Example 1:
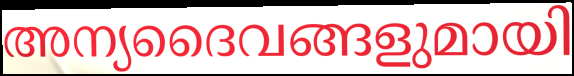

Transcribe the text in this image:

അന്യദൈവങ്ങളുമായി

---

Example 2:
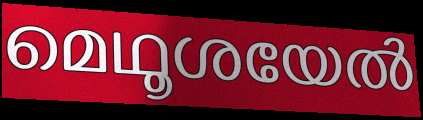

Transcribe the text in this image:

മെഥൂശയേൽ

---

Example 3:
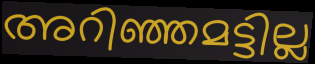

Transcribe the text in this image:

അറിഞ്ഞമട്ടില്ല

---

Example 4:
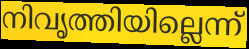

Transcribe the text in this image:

നിവൃത്തിയില്ലെന്ന്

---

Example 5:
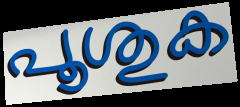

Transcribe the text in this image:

പൂശുക